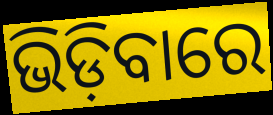
ଭିଡ଼ିବାରେ